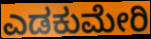
ಎಡಕುಮೇರಿ